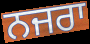
ਨਜਰਾ